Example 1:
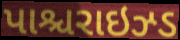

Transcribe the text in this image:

પાશ્ચરાઇઝ્ડ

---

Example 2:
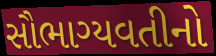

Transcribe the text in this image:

સૌભાગ્યવતીનો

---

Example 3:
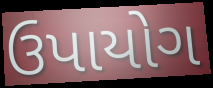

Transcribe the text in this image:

ઉપાયોગ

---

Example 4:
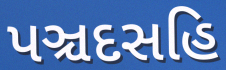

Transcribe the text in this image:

પઞ્ચદસહિ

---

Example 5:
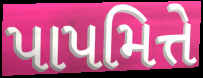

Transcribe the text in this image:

પાપમિત્તે